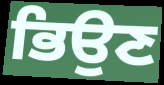
ਭਿਉਣ